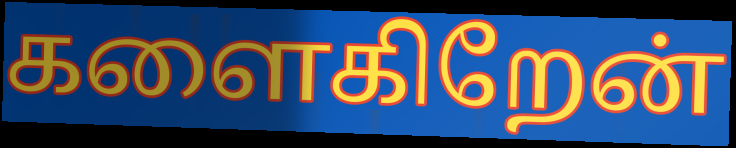
களைகிறேன்